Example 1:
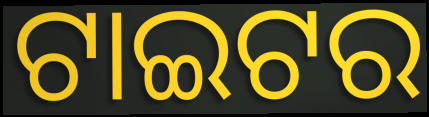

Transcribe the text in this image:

ଟାଇଟର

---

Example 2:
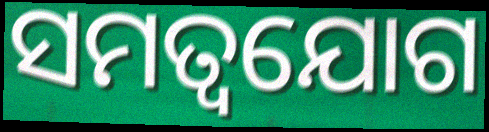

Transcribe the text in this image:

ସମତ୍ୱଯୋଗ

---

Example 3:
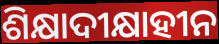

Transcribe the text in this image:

ଶିକ୍ଷାଦୀକ୍ଷାହୀନ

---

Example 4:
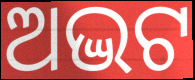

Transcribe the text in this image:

ଅଦ୍ଭଟ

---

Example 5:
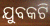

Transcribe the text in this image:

ଯୁବକଟି